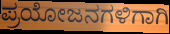
ಪ್ರಯೋಜನಗಳಿಗಾಗಿ